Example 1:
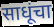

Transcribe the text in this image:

साधूंचा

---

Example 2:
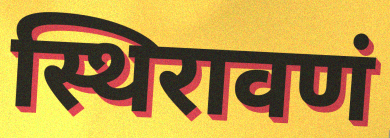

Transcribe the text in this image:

स्थिरावणं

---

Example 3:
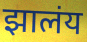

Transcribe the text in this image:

झालंय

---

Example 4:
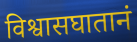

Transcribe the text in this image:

विश्वासघातानं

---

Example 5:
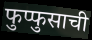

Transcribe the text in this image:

फुप्फुसाची